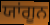
ਯਾਂਗੂਨ